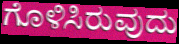
ಗೊಳಿಸಿರುವುದು